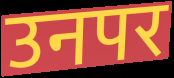
उनपर